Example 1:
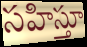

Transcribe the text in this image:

సహిస్తూ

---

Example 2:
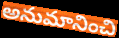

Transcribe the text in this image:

అనుమానించి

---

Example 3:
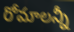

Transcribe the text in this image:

రోమాలన్నీ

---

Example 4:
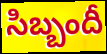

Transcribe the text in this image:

సిబ్బందీ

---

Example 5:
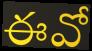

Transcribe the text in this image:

ఈవో